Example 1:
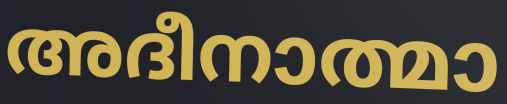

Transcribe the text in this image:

അദീനാത്മാ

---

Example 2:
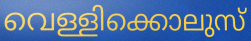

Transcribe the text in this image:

വെള്ളിക്കൊലുസ്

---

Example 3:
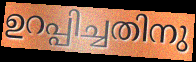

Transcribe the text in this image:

ഉറപ്പിച്ചതിനു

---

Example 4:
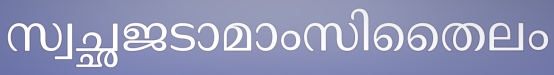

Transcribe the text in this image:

സ്വച്ഛജടാമാംസിതൈലം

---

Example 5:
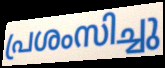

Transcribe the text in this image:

പ്രശംസിച്ചു